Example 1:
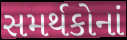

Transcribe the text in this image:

સમર્થકોનાં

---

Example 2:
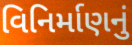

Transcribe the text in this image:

વિનિર્માણનું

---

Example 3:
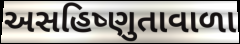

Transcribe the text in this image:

અસહિષ્ણુતાવાળા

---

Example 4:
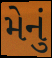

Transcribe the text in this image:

મેનું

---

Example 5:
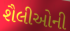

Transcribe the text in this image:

શૈલીઓની